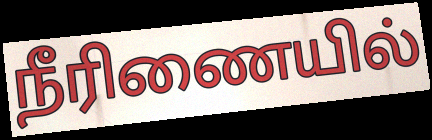
நீரிணையில்